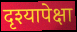
दृश्यापेक्षा